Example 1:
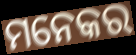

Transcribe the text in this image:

ମନେକର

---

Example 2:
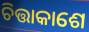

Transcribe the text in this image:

ଚିତ୍ତାକାଶେ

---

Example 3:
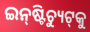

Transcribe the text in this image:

ଇନ୍‌ଷ୍ଟିଚ୍ୟୁଟ୍‌କୁ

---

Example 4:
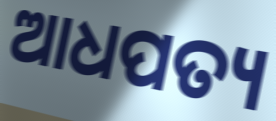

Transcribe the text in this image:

ଆଧପତ୍ୟ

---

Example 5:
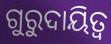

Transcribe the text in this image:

ଗୁରୁଦାୟିତ୍ୱ